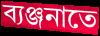
ব্যঞ্জনাতে